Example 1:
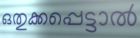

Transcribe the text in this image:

ഒതുക്കപ്പെട്ടാൽ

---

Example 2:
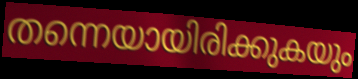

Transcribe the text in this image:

തന്നെയായിരിക്കുകയും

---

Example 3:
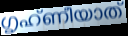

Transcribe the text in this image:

ഗൃഹ്ണീയാത്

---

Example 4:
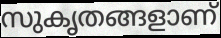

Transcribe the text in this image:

സുകൃതങ്ങളാണ്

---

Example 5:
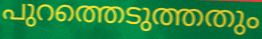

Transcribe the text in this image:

പുറത്തെടുത്തതും